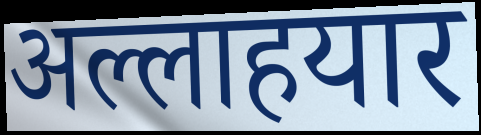
अल्लाहयार